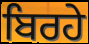
ਬਿਰਹੇ